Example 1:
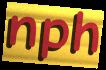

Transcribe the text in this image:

nph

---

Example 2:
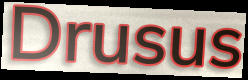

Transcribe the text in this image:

Drusus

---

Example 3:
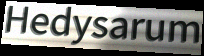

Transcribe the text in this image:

Hedysarum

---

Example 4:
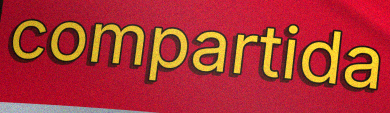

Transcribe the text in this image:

compartida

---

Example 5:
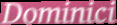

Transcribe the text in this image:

Dominici